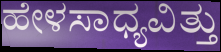
ಹೇಳಸಾಧ್ಯವಿತ್ತು